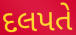
દલપતે